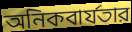
অনিকবার্যতার